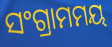
ସଂଗ୍ରାମମୟ